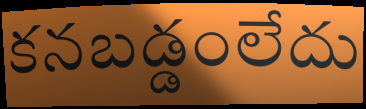
కనబడ్డంలేదు